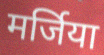
मर्जिया